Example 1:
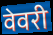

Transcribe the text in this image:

वेवरी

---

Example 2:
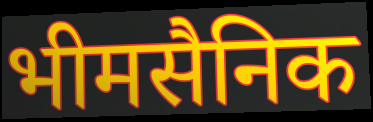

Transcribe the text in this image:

भीमसैनिक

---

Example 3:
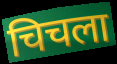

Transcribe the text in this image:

चिचला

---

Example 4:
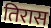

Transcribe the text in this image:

तिरास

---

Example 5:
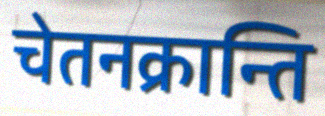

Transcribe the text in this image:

चेतनक्रान्ति